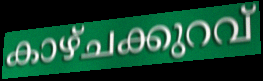
കാഴ്ചക്കുറവ്